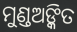
ମୁଣ୍ଡଅଙ୍କିତ